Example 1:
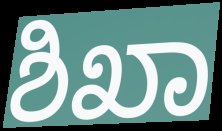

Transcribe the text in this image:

ಶಿಖಾ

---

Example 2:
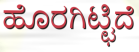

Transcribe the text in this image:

ಹೊರಗಿಟ್ಟಿದೆ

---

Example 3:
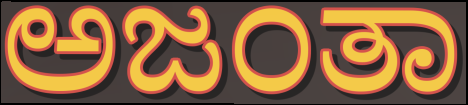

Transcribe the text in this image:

ಅಜಂತಾ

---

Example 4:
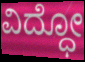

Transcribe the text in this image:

ವಿದ್ಧೋ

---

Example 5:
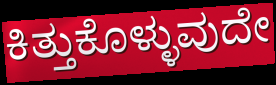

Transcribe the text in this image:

ಕಿತ್ತುಕೊಳ್ಳುವುದೇ